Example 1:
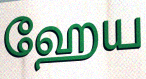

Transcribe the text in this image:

ஹேய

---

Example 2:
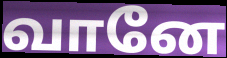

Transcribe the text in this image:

வானே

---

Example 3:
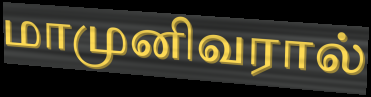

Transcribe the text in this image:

மாமுனிவரால்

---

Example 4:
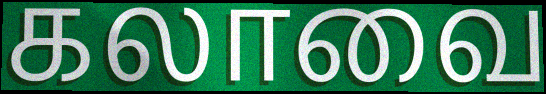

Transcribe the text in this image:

கலாவை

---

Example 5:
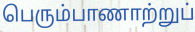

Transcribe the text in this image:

பெரும்பாணாற்றுப்